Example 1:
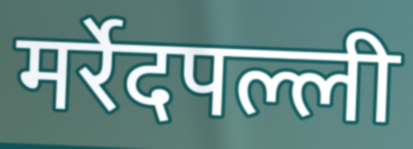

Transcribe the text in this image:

मर्रेदपल्ली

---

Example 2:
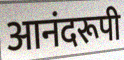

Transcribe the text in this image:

आनंदरूपी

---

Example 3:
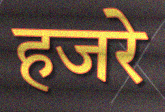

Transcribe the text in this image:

हजरे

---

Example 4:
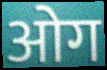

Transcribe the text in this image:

ओग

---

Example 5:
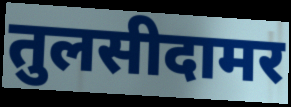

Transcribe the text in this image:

तुलसीदामर